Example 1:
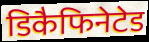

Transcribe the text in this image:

डिकैफिनेटेड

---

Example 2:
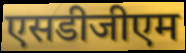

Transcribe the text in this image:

एसडीजीएम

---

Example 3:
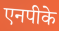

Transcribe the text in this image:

एनपीके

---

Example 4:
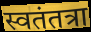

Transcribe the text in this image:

स्वतंतत्रा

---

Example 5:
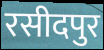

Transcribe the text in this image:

रसीदपुर